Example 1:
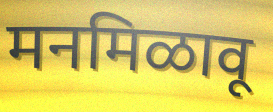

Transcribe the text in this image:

मनमिळावू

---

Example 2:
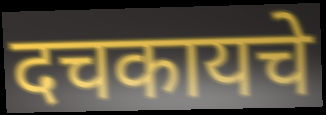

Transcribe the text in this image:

दचकायचे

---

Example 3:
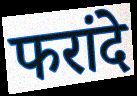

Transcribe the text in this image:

फरांदे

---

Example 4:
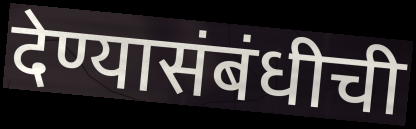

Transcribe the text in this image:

देण्यासंबंधीची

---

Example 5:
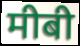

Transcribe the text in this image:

मीबी